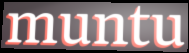
muntu